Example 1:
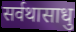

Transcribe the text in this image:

सर्वथासाधु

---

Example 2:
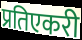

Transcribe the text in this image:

प्रतिएकरी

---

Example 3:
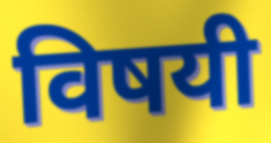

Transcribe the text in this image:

विषयी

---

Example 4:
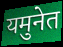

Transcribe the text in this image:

यमुनेत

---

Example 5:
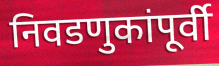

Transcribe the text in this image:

निवडणुकांपूर्वी